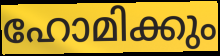
ഹോമിക്കും